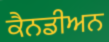
ਕੈਨਡੀਅਨ